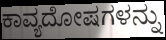
ಕಾವ್ಯದೋಷಗಳನ್ನು